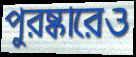
পুরষ্কারেও